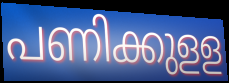
പണിക്കുളള